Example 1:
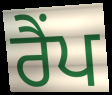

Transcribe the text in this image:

ਰੈਂਪ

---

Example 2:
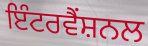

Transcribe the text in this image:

ਇੰਟਰਵੈਂਸ਼ਨਲ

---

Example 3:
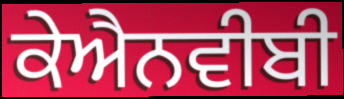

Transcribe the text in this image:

ਕੇਐਨਵੀਬੀ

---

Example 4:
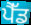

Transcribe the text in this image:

ਪੈੱਡ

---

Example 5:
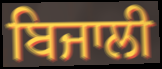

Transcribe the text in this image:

ਬਿਜਾਲੀ